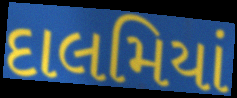
દાલમિયાં